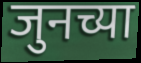
जुनच्या